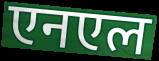
एनएल